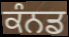
ਕੰਨਡ